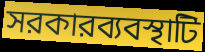
সরকারব্যবস্থাটি